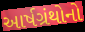
આર્ષગ્રંથોનો